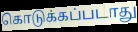
கொடுக்கப்படாது